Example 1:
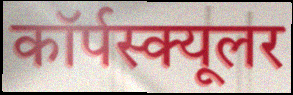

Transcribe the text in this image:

कॉर्पस्क्यूलर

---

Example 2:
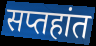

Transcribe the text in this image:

सप्तहांत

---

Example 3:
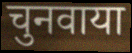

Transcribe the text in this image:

चुनवाया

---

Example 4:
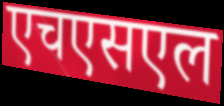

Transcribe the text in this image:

एचएसएल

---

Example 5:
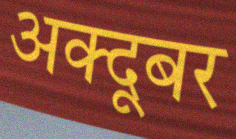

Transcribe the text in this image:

अक्दूबर